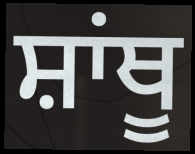
ਸ਼ਾਂਥੂ